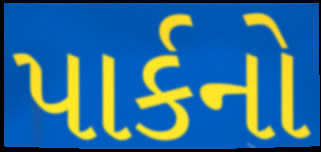
પાર્કનો